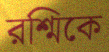
রশ্মিকে